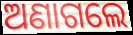
ଅଣାଗଲେ